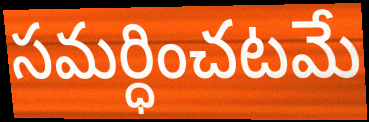
సమర్ధించటమే